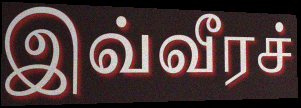
இவ்வீரச்